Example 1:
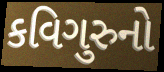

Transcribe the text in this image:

કવિગુરુનો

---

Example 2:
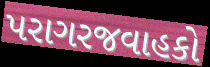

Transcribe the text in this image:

પરાગરજવાહકો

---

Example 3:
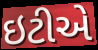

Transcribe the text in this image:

ઇટીએ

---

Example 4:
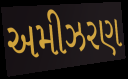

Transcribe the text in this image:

અમીઝરણ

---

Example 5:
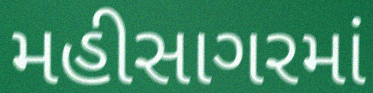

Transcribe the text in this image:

મહીસાગરમાં